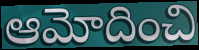
ఆమోదించి